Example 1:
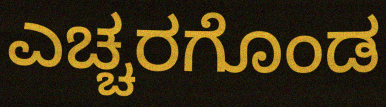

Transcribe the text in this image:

ಎಚ್ಚರಗೊಂಡ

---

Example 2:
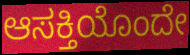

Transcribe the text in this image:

ಆಸಕ್ತಿಯೊಂದೇ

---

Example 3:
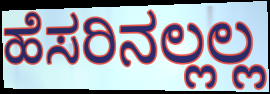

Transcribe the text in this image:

ಹೆಸರಿನಲ್ಲಲ್ಲ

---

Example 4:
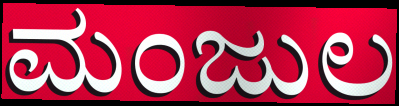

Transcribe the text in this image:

ಮಂಜುಲ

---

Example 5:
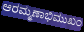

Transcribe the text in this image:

ಆರಮ್ಮಣಾಭಿಮುಖಂ